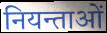
नियन्ताओं